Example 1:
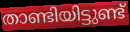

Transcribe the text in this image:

താണ്ടിയിട്ടുണ്ട്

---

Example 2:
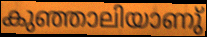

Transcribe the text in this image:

കുഞ്ഞാലിയാണു്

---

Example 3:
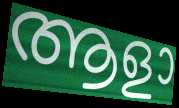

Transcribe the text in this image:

ആളാ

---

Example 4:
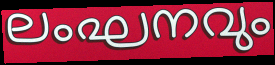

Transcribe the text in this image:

ലംഘനവും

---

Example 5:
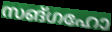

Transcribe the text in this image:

സങ്ഗഹോ